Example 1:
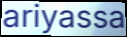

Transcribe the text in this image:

ariyassa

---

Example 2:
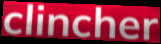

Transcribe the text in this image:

clincher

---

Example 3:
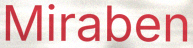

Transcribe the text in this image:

Miraben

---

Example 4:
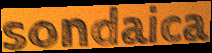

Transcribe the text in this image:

sondaica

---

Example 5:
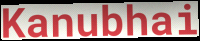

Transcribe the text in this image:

Kanubhai